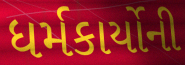
ધર્મકાર્યોની